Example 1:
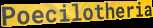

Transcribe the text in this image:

Poecilotheria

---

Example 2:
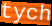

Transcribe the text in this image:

tych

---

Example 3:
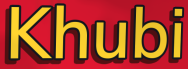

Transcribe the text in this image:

Khubi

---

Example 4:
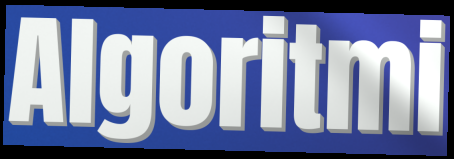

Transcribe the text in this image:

Algoritmi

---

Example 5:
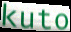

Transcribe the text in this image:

kuto